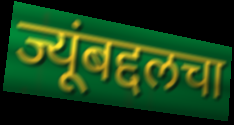
ज्यूंबद्दलचा